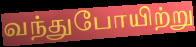
வந்துபோயிற்று